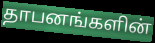
தாபனங்களின்